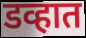
डव्हात